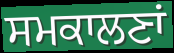
ਸਮਕਾਲਣਾਂ